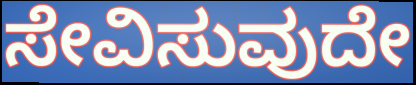
ಸೇವಿಸುವುದೇ